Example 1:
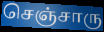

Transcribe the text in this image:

செஞ்சாரு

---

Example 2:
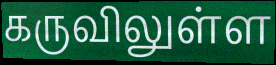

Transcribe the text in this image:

கருவிலுள்ள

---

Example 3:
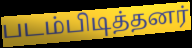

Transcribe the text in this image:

படம்பிடித்தனர்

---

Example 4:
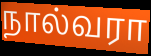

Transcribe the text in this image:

நால்வரா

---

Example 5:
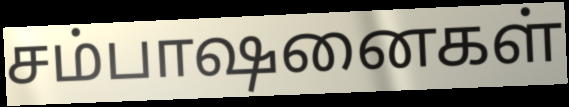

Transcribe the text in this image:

சம்பாஷனைகள்